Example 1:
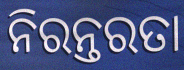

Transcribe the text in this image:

ନିରନ୍ତରତା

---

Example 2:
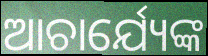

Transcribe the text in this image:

ଆଚାର୍ଯ୍ୟେଙ୍କ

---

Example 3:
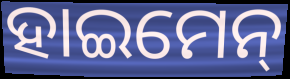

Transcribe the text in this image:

ହାଇମେନ୍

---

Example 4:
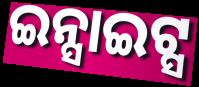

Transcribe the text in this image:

ଇନ୍ସାଇଟ୍ସ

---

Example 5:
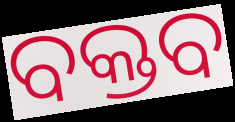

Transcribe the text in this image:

ବକ୍ତବ